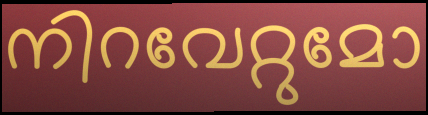
നിറവേറ്റുമോ